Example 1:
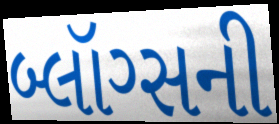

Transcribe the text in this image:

બ્લૉગ્સની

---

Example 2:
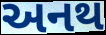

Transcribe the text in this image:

અનથ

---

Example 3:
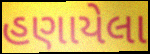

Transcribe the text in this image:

હણાયેલા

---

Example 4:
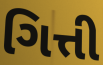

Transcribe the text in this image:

ગિત્તી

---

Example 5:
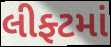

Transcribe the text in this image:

લીફ્ટમાં